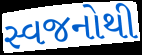
સ્વજનોથી